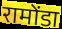
रामोंडा